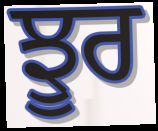
ਝੂਰ